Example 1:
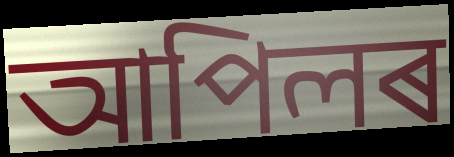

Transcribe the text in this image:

আপিলৰ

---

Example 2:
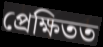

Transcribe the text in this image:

প্ৰেক্ষিতত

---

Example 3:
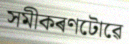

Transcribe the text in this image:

সমীকৰণটোৱে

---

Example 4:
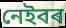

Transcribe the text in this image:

নেইবৰ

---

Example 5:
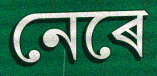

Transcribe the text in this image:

নেৰে